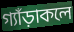
গ্যাঁড়াকলে